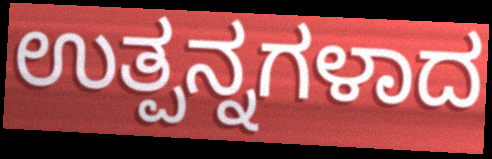
ಉತ್ಪನ್ನಗಳಾದ